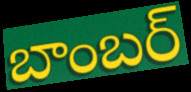
బాంబర్